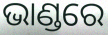
ଭାଣ୍ଡରେ